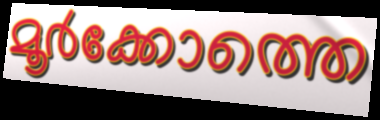
മൂർക്കോത്തെ